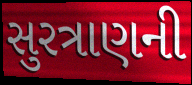
સુરત્રાણની